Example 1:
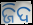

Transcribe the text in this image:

ଜିଦ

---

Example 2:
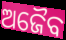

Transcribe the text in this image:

ଅଜୈବ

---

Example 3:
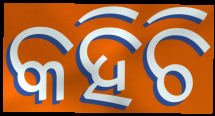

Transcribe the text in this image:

କହିଚି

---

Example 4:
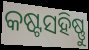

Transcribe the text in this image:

କଷ୍ଟସହିଷ୍ଣୁ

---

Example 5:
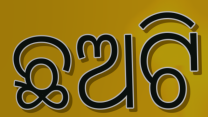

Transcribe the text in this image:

ଛଅଟି